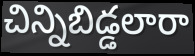
చిన్నిబిడ్డలారా